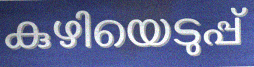
കുഴിയെടുപ്പ്